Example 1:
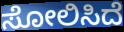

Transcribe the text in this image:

ಸೋಲಿಸಿದೆ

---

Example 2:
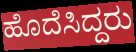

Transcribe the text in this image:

ಹೊದೆಸಿದ್ದರು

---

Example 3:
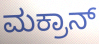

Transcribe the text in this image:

ಮಕ್ರಾನ್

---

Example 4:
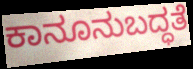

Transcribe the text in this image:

ಕಾನೂನುಬದ್ಧತೆ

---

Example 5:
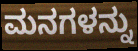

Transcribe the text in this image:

ಮನಗಳನ್ನು